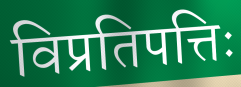
विप्रतिपत्तिः